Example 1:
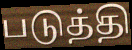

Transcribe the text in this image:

படுத்தி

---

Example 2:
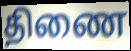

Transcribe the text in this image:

திணை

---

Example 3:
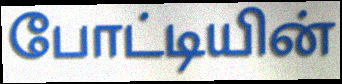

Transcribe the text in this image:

போட்டியின்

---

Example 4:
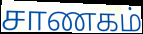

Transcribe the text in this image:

சாணகம்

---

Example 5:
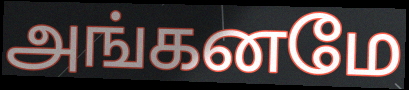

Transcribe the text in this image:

அங்கனமே